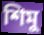
শিমু